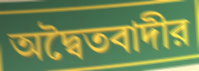
অদ্বৈতবাদীর